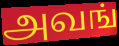
அவங்